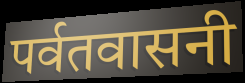
पर्वतवासनी